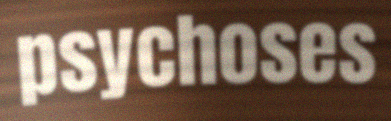
psychoses